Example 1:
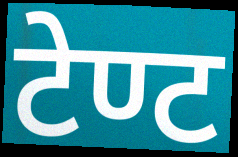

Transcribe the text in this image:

टेण्ट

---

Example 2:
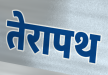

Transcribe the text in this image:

तेरापथ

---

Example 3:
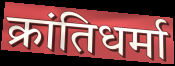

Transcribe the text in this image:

क्रांतिधर्मा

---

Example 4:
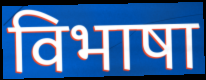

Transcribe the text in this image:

विभाषा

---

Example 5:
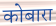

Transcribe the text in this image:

कोबारा